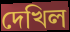
দেখিল